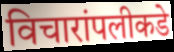
विचारांपलीकडे